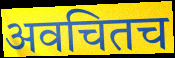
अवचितच